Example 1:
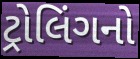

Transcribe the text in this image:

ટ્રોલિંગનો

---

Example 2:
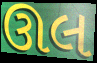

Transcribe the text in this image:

ઊલ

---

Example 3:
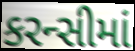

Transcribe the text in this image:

કરન્સીમાં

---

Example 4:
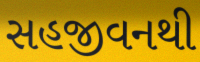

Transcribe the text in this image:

સહજીવનથી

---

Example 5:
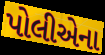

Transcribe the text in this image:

પોલીએના